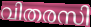
വിതരസി